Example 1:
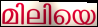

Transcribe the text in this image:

മിലിയെ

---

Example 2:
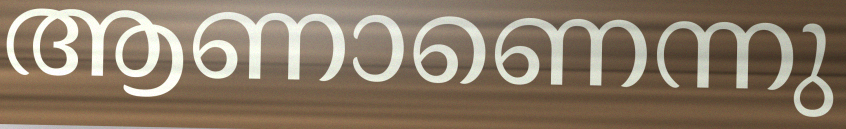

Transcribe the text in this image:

ആണാണെന്നു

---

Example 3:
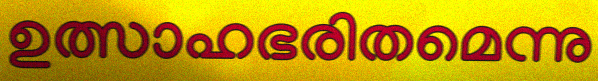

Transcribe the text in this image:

ഉത്സാഹഭരിതമെന്നു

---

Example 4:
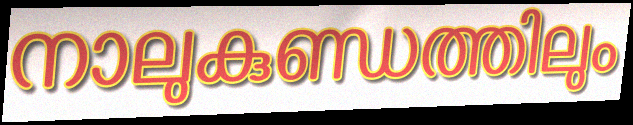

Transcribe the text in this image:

നാലുകുണ്ഡത്തിലും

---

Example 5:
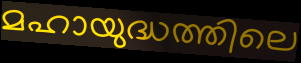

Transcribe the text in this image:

മഹായുദ്ധത്തിലെ